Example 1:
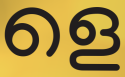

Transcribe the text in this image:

ളെ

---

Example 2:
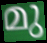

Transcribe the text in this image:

മു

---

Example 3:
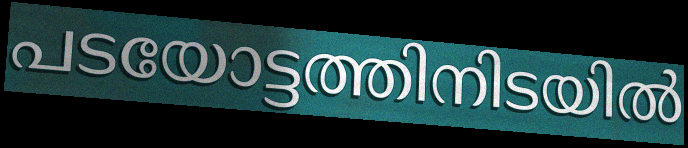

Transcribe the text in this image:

പടയോട്ടത്തിനിടയിൽ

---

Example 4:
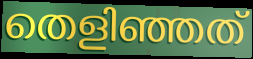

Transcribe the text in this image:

തെളിഞ്ഞത്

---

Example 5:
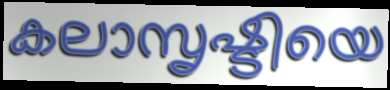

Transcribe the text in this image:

കലാസൃഷ്ടിയെ